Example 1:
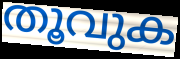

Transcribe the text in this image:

തൂവുക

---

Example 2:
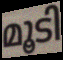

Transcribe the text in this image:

മൂടി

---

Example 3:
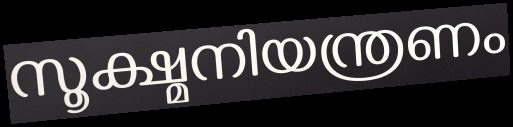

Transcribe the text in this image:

സൂക്ഷ്മനിയന്ത്രണം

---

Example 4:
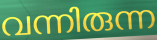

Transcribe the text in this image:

വന്നിരുന്ന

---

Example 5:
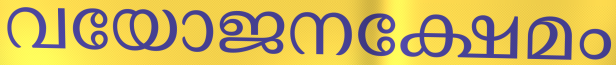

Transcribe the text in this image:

വയോജനക്ഷേമം